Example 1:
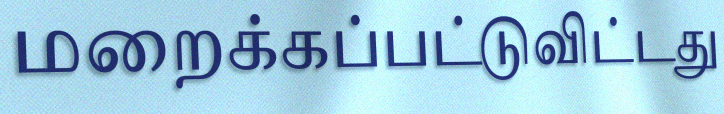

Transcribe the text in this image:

மறைக்கப்பட்டுவிட்டது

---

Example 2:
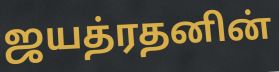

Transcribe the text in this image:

ஜயத்ரதனின்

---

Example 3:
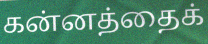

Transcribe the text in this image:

கன்னத்தைக்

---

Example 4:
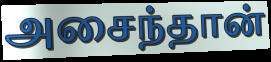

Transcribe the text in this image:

அசைந்தான்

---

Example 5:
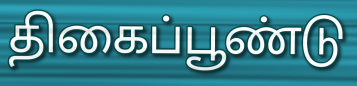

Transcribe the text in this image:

திகைப்பூண்டு